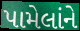
પામેલાંને